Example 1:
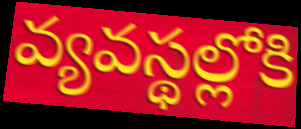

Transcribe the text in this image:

వ్యవస్థల్లోకి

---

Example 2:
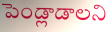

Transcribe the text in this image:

పెండ్లాడాలని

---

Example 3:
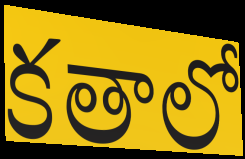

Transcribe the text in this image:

కతాలో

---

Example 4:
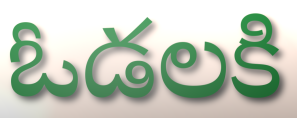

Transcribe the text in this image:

ఓడలకి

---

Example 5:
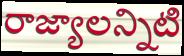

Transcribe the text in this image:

రాజ్యాలన్నిటి